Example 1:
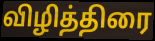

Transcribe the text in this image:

விழித்திரை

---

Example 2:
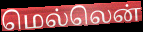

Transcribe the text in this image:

மெல்லென்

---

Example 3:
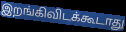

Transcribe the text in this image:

இறங்கிவிடக்கூடாது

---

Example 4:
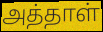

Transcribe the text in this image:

அத்தாள்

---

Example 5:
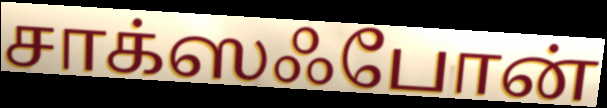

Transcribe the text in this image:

சாக்ஸஃபோன்